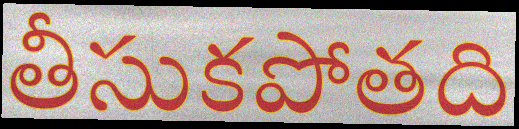
తీసుకపోతది